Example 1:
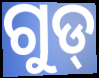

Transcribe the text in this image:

ଗୁଡ୍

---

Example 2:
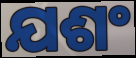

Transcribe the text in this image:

ଯଶଂ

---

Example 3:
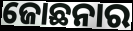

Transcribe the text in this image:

ଜୋଛନାର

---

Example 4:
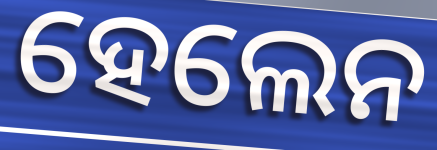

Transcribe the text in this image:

ହେଲେନ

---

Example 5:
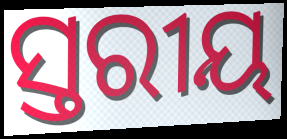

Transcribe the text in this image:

ସ୍ତରୀୟ